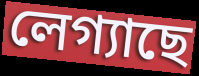
লেগ্যাছে